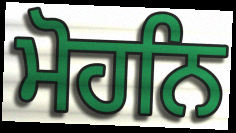
ਮੋਹਨਿ